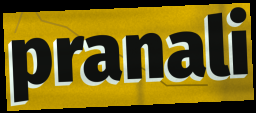
pranali